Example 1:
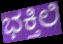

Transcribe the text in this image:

ಭಕ್ತಿಲಿ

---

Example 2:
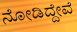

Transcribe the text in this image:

ನೋಡಿದ್ದೇವೆ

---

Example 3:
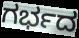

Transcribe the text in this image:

ಗರ್ಭದ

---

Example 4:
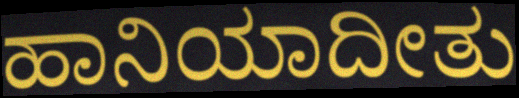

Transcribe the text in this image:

ಹಾನಿಯಾದೀತು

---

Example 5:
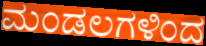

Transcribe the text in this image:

ಮಂಡಲಗಳಿಂದ